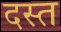
दस्त